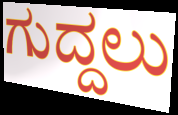
ಗುದ್ದಲು